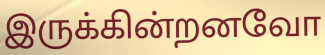
இருக்கின்றனவோ